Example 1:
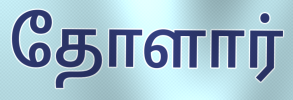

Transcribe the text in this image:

தோளார்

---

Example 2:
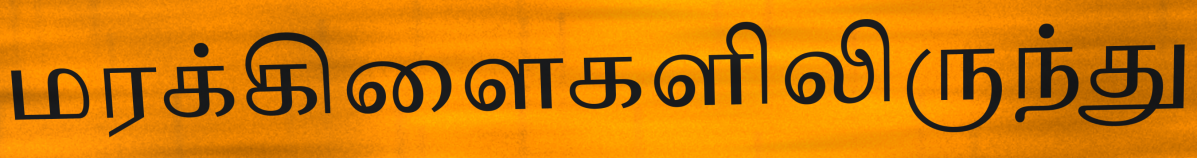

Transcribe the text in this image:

மரக்கிளைகளிலிருந்து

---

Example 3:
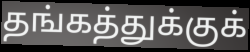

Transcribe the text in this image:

தங்கத்துக்குக்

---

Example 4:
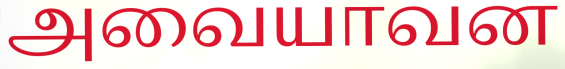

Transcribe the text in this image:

அவையாவன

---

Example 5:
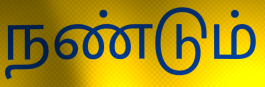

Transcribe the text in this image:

நண்டும்